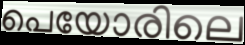
പെയോരിലെ